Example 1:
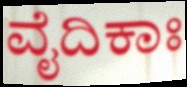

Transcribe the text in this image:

ವೈದಿಕಾಃ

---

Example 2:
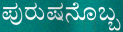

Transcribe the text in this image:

ಪುರುಷನೊಬ್ಬ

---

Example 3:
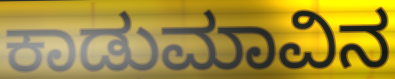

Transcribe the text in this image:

ಕಾಡುಮಾವಿನ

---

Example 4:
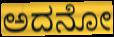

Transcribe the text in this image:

ಅದನೋ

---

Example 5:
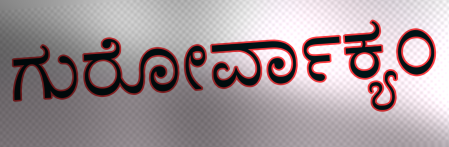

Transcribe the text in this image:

ಗುರೋರ್ವಾಕ್ಯಂ